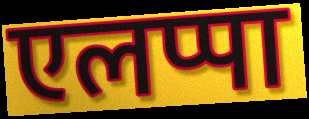
एलप्पा